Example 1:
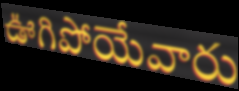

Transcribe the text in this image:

ఊగిపోయేవారు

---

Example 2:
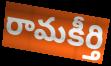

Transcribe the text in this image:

రామకీర్తి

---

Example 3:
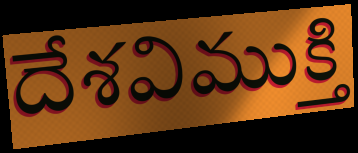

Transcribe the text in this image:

దేశవిముక్తి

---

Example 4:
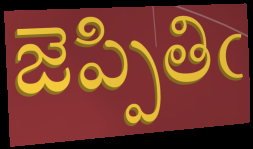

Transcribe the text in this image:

జెప్పితిఁ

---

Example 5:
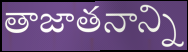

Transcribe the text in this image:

తాజాతనాన్ని